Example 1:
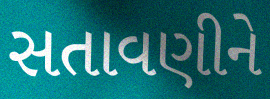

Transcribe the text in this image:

સતાવણીને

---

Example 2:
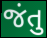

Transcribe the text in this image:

જંતુ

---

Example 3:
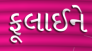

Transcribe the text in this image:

ફૂલાઈને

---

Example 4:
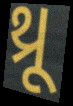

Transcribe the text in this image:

થ્રૂ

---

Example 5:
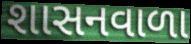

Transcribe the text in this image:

શાસનવાળા